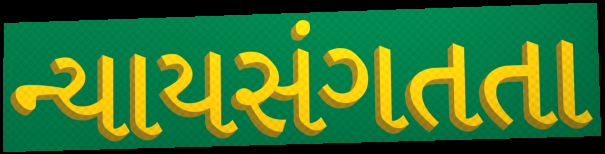
ન્યાયસંગતતા